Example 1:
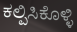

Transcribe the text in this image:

ಕಲ್ಪಿಸಿಕೊಳ್ಳಿ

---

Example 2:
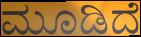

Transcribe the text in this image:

ಮೂಡಿದೆ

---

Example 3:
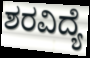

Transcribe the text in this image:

ಶರವಿದ್ಯೆ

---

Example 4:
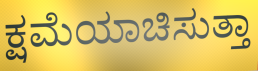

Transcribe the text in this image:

ಕ್ಷಮೆಯಾಚಿಸುತ್ತಾ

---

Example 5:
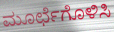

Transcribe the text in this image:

ಮೂರ್ಛೆಗೊಳಿಸಿ